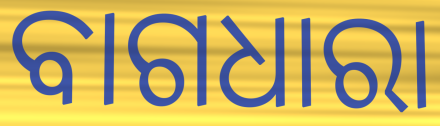
ବାଗଧାରା